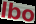
Ibo